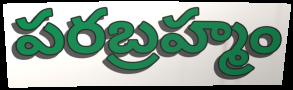
పరబ్రహ్మం